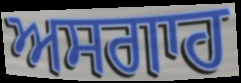
ਅਸਗਾਹ